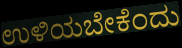
ಉಳಿಯಬೇಕೆಂದು